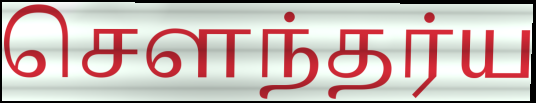
செளந்தர்ய